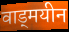
वाड्‌मयीन